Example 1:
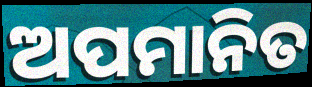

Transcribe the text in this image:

ଅପମାନିତ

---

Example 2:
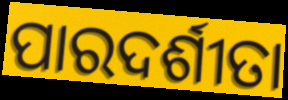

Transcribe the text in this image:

ପାରଦର୍ଶୀତା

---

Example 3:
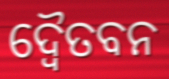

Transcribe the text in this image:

ଦ୍ୱୈତବନ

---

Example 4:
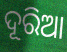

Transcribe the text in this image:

ଦୂରିଆ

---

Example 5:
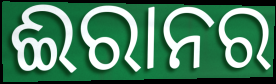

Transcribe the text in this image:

ଈରାନର